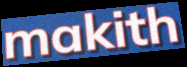
makith